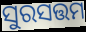
ସୁରସତ୍ତମ